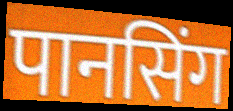
पानसिंग